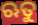
ଋତୁ